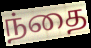
ந்தை